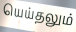
யெய்தலும்